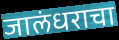
जालंधराचा